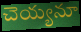
చెయ్యనూ